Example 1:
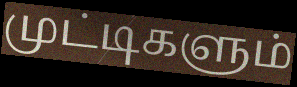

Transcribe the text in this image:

முட்டிகளும்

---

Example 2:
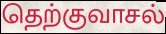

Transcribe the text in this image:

தெற்குவாசல்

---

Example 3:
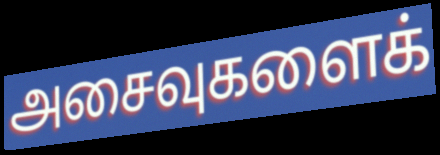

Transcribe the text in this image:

அசைவுகளைக்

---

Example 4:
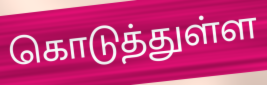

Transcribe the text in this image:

கொடுத்துள்ள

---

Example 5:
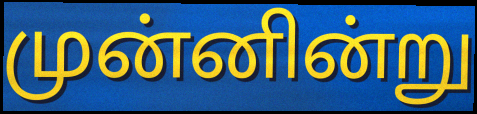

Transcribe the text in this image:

முன்னின்று